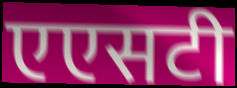
एएसटी